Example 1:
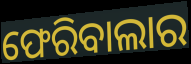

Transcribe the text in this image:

ଫେରିବାଲାର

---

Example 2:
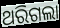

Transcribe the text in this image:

ଥରିଗଲା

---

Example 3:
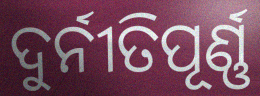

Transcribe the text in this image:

ଦୁର୍ନୀତିପୂର୍ଣ୍ଣ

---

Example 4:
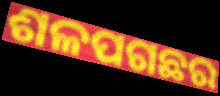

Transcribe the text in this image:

ଶଳପଗଛର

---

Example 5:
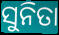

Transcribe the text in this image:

ସୁନିତା